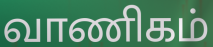
வாணிகம்